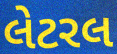
લેટરલ